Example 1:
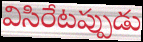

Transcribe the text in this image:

విసిరేటప్పుడు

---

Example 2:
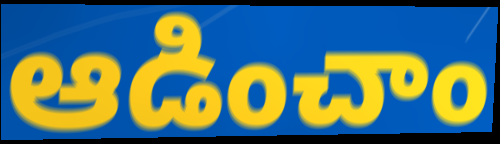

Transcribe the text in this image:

ఆడించాం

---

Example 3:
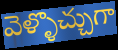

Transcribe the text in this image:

వెళ్ళొచ్చుగా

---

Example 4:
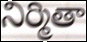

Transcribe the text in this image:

నిర్మితా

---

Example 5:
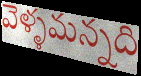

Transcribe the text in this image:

వెళ్ళమన్నది